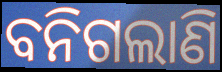
ବନିଗଲାଣି